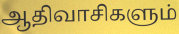
ஆதிவாசிகளும்